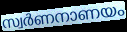
സ്വർണനാണയം